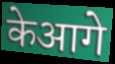
केआगे